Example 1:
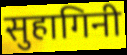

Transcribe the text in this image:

सुहागिनी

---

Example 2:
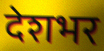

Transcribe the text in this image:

देशभर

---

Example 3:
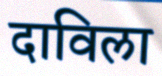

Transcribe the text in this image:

दाविला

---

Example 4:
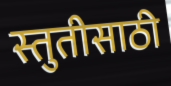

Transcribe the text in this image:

स्तुतीसाठी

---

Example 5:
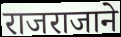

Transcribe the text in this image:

राजराजाने